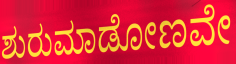
ಶುರುಮಾಡೋಣವೇ